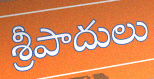
శ్రీపాదులు